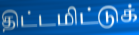
திட்டமிட்டுக்